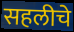
सहलीचे